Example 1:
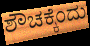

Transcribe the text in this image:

ಶೌಚಕ್ಕೆಂದು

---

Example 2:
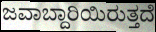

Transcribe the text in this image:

ಜವಾಬ್ದಾರಿಯಿರುತ್ತದೆ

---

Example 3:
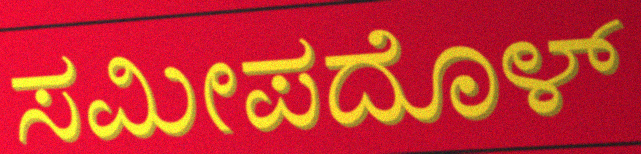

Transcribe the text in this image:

ಸಮೀಪದೊಳ್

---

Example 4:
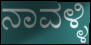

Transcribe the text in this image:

ನಾವಳ್ಳಿ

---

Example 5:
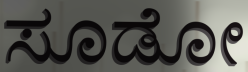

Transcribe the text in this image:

ಸೂಡೋ